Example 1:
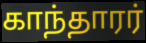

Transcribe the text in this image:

காந்தாரர்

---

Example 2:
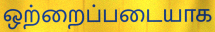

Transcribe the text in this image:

ஒற்றைப்படையாக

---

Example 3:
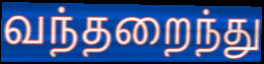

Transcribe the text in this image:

வந்தறைந்து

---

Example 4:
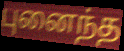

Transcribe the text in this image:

புனைந்த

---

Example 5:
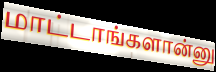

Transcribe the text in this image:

மாட்டாங்களான்னு